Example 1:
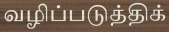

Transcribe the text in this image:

வழிப்படுத்திக்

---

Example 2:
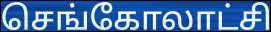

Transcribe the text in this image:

செங்கோலாட்சி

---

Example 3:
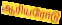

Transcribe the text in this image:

ஆரியரோடு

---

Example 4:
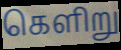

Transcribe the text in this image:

கெளிறு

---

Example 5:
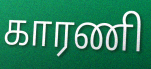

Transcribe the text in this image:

காரணி